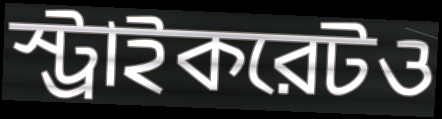
স্ট্রাইকরেটও